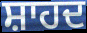
ਸ਼ਾਹਦ